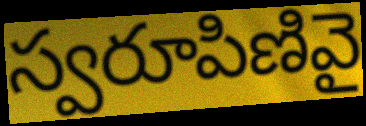
స్వరూపిణివై